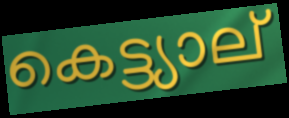
കെട്ട്യാല്